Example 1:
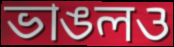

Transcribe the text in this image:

ভাঙলও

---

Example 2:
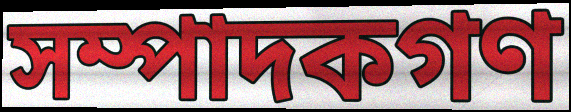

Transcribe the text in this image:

সম্পাদকগণ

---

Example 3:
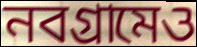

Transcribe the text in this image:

নবগ্রামেও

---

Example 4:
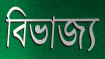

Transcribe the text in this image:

বিভাজ্য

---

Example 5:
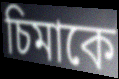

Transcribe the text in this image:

চিমাকে